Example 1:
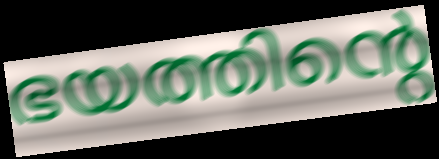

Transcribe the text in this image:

ഭയത്തിന്റെ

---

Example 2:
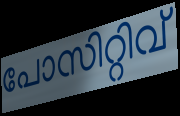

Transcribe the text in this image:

പോസിറ്റിവ്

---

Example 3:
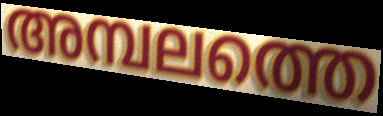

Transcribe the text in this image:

അമ്പലത്തെ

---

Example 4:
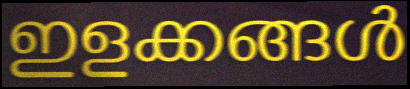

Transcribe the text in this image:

ഇളക്കങ്ങൾ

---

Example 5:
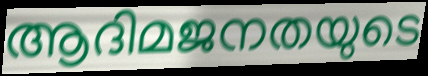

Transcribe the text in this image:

ആദിമജനതയുടെ